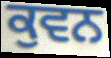
ਕੁਵਨ